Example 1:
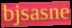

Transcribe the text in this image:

bjsasne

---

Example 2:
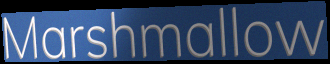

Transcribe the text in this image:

Marshmallow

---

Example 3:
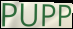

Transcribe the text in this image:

PUPP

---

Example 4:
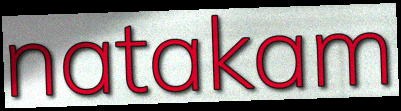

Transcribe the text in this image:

natakam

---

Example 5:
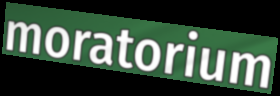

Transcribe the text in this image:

moratorium